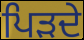
ਪਿੜਦੇ